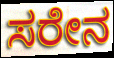
ಸರೇನ